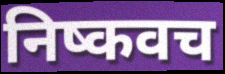
निष्कवच